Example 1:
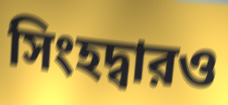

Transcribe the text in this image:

সিংহদ্বারও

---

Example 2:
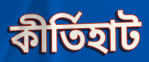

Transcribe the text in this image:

কীর্তিহাট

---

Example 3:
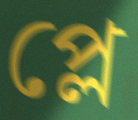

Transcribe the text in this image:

প্লে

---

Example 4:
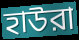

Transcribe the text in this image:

হাউরা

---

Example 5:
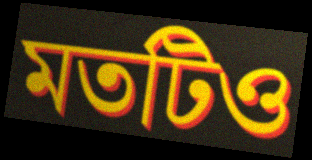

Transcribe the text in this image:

মতটিও